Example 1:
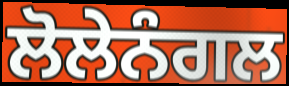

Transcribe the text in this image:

ਲੋਲੇਨੰਗਲ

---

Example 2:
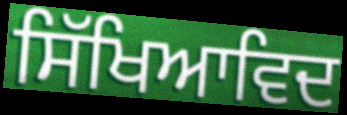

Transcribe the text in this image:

ਸਿੱਖਿਆਵਿਦ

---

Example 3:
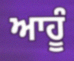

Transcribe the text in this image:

ਆਹੂੰ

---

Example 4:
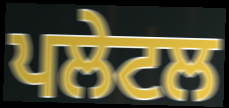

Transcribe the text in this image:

ਪਲੇਟਲ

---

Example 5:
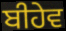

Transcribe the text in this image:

ਬੀਹੇਵ